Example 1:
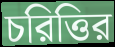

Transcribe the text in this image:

চরিত্তির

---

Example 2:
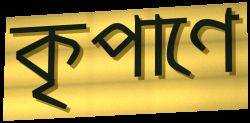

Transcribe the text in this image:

কৃপাণে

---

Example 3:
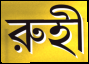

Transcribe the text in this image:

রুহী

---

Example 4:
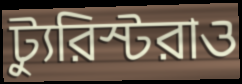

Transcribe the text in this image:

ট্যুরিস্টরাও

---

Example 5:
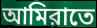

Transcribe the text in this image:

আমিরাতে